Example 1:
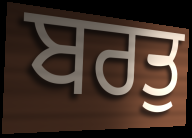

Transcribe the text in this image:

ਬਰਤੁ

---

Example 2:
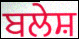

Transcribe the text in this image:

ਬਲੇਸ਼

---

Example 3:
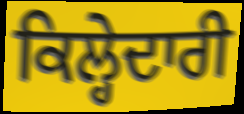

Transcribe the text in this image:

ਕਿਲ੍ਹੇਦਾਰੀ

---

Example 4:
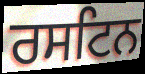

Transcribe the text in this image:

ਰਸਟਿਨ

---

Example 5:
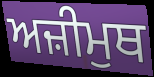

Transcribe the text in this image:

ਅਜ਼ੀਮੁਥ